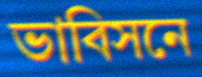
ভাবিসনে